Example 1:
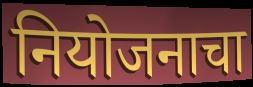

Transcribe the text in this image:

नियोजनाचा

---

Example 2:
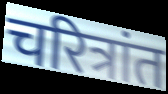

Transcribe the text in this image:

चरित्रांत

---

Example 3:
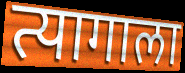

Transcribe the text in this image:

त्यागाला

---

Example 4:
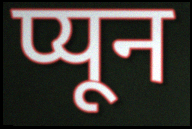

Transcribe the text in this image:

प्यून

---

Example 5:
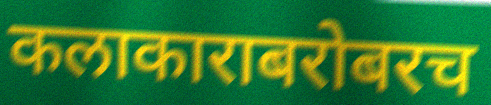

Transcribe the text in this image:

कलाकाराबरोबरच